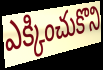
ఎక్కించుకొని